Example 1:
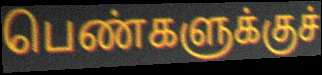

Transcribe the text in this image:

பெண்களுக்குச்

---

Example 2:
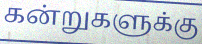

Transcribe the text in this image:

கன்றுகளுக்கு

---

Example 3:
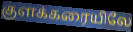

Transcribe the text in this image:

குளக்கரையிலே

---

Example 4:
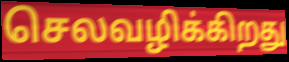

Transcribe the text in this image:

செலவழிக்கிறது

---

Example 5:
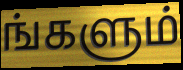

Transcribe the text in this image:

ங்களும்